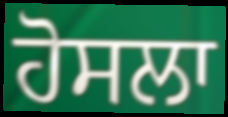
ਹੋਸਲਾ